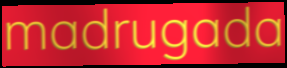
madrugada